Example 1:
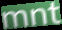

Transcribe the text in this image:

mnt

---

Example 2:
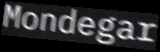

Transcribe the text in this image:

Mondegar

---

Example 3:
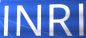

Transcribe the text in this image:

INRI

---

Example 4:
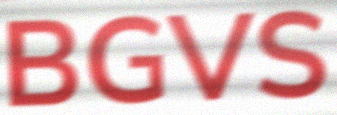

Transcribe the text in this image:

BGVS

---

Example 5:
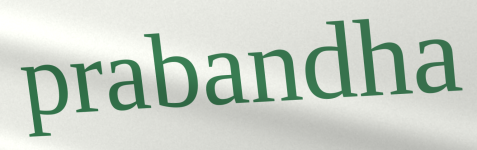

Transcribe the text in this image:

prabandha